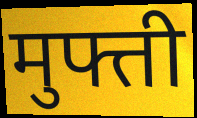
मुफ्ती